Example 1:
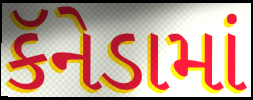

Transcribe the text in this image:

કૅનેડામાં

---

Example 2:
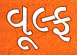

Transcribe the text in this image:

વૂલ્ફ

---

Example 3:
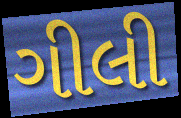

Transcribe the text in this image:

ગીલી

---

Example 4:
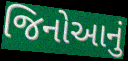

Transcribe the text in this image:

જિનોઆનું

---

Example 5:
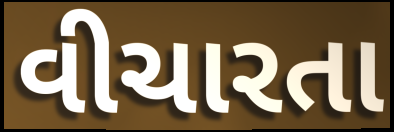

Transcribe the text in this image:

વીચારતા